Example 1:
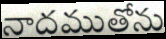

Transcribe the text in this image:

నాదముతోను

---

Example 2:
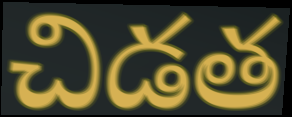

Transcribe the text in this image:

చిడత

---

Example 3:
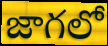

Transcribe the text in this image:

జాగలో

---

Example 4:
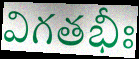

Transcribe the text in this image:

విగతభీః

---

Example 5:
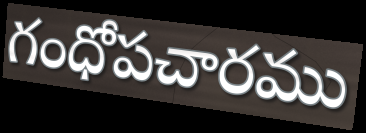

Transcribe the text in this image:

గంధోపచారము